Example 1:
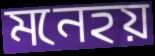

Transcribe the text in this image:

মনেহয়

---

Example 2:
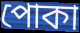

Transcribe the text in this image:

পোকা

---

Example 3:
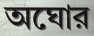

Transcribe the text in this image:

অঘোর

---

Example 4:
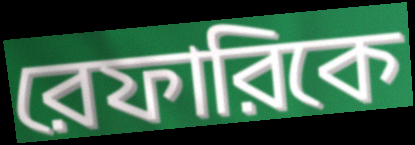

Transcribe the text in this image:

রেফারিকে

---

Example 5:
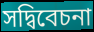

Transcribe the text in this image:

সদ্বিবেচনা